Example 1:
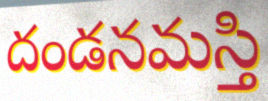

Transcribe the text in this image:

దండనమస్తి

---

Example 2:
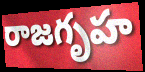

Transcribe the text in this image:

రాజగృహ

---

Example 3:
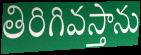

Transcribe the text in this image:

తిరిగివస్తాను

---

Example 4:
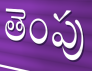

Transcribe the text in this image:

తెంపు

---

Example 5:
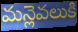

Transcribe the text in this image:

మన్లెవలుకి